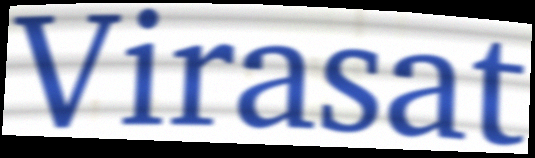
Virasat